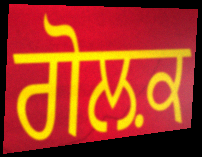
ਗੋਲ਼ਕ